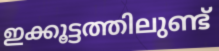
ഇക്കൂട്ടത്തിലുണ്ട്